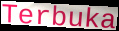
Terbuka